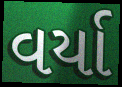
વર્યા